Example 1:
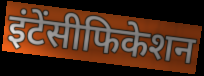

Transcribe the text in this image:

इंटेंसीफिकेशन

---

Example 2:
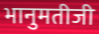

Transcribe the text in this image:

भानुमतीजी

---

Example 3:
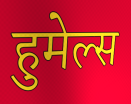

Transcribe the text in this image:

हुमेल्स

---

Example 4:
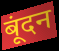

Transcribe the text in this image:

बूंदन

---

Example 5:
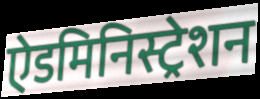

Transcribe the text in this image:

ऐडमिनिस्ट्रेशन